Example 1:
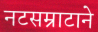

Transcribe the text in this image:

नटसम्राटाने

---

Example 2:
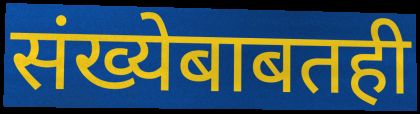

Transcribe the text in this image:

संख्येबाबतही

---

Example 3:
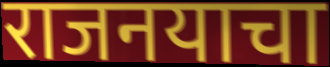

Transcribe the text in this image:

राजनयाचा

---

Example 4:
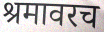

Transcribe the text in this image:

श्रमावरच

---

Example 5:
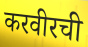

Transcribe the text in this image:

करवीरची